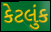
કેટલુંક